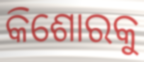
କିଶୋରକୁ